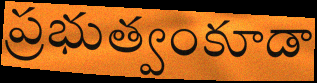
ప్రభుత్వంకూడా